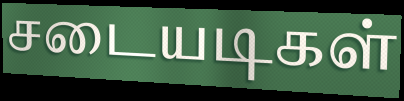
சடையடிகள்